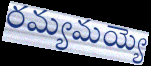
రమ్యమయ్యె